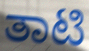
ತಾಟಿ